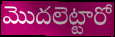
మొదలెట్టారో